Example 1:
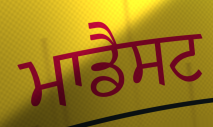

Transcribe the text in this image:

ਮਾਡੈਸਟ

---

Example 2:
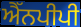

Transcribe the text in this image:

ਐੱਨਪੀਪੀ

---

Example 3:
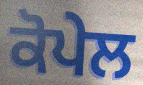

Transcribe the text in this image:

ਕੋਪੇਲ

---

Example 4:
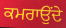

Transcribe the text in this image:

ਕਮਰਾਉਂਦੇ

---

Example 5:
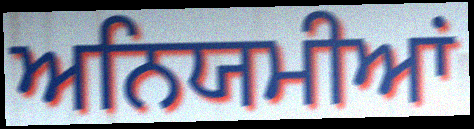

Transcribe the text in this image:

ਅਨਿਯਮੀਆਂ